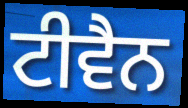
ਟੀਵੈਨ